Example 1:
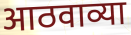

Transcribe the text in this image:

आठवाव्या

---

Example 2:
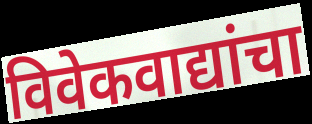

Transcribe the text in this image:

विवेकवाद्यांचा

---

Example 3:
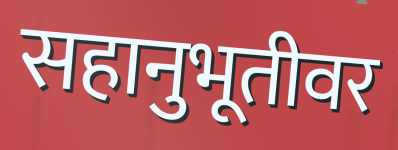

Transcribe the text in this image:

सहानुभूतीवर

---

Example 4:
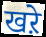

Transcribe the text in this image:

खऱे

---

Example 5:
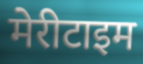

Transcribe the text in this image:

मेरीटाइम